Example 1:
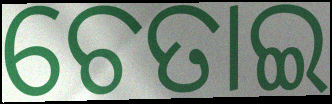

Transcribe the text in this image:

ଚେତାଇ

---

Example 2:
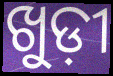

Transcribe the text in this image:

ଖୁଡ଼ୀ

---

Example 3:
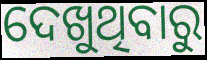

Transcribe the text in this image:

ଦେଖୁଥିବାରୁ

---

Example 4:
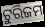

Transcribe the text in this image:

ଟୁରିଜମ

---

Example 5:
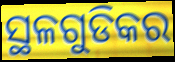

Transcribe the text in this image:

ସ୍ଥଳଗୁଡିକର